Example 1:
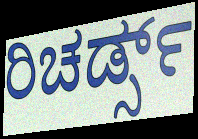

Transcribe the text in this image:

ರಿಚರ್ಡ್ಸ್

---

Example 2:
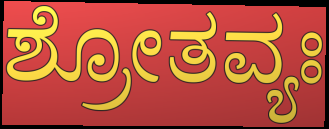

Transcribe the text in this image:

ಶ್ರೋತವ್ಯಃ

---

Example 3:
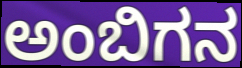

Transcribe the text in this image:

ಅಂಬಿಗನ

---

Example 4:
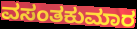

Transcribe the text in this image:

ವಸಂತಕುಮಾರ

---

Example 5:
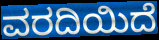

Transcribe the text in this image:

ವರದಿಯಿದೆ